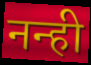
नन्ही